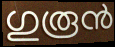
ഗുരൂൻ